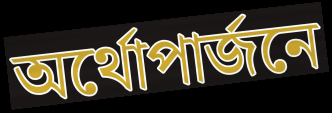
অর্থোপার্জনে